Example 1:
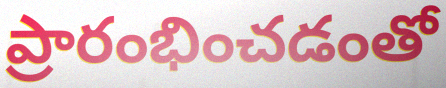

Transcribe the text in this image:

ప్రారంభించడంతో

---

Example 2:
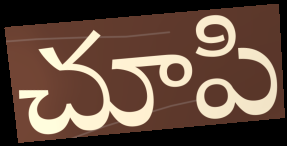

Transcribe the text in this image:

చూపి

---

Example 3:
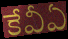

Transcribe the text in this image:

కేవీఏ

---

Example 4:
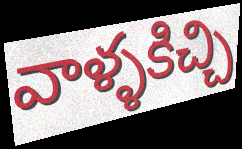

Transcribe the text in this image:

వాళ్ళకిచ్చి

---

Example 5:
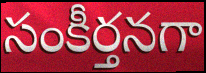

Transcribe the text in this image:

సంకీర్తనగా